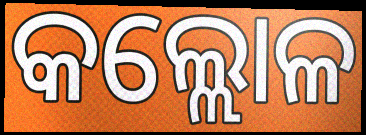
କଲ୍ଲୋଳ